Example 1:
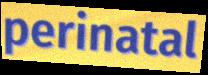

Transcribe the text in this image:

perinatal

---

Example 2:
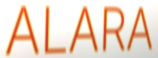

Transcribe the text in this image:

ALARA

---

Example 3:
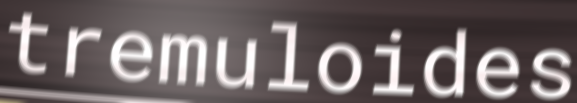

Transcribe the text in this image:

tremuloides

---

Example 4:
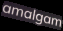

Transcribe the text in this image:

amalgam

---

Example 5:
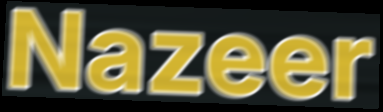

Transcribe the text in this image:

Nazeer